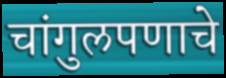
चांगुलपणाचे